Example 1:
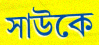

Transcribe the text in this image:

সাউকে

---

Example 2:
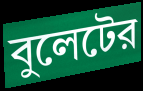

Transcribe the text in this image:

বুলেটের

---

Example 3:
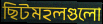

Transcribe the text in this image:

ছিটমহলগুলো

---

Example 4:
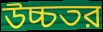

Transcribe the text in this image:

উচ্চতর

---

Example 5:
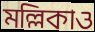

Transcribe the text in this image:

মল্লিকাও